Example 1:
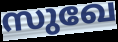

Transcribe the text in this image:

സുഖേ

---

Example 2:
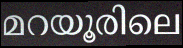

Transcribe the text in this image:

മറയൂരിലെ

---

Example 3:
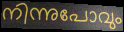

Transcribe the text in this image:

നിന്നുപോവും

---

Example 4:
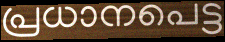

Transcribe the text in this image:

പ്രധാനപെട്ട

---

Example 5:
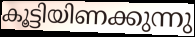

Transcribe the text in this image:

കൂട്ടിയിണക്കുന്നു